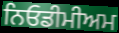
ਨਿਓਡੀਮੀਅਮ